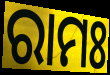
ରାମଃ